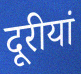
दूरीयां